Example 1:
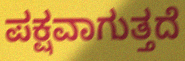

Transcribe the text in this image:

ಪಕ್ಷವಾಗುತ್ತದೆ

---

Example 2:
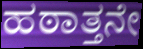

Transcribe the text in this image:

ಹಠಾತ್ತನೇ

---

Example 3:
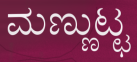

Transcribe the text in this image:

ಮಣ್ಣುಟ್ಟ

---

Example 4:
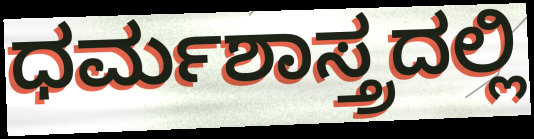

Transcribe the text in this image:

ಧರ್ಮಶಾಸ್ತ್ರದಲ್ಲಿ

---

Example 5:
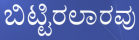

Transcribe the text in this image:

ಬಿಟ್ಟಿರಲಾರವು